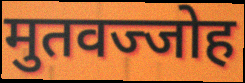
मुतवज्जोह